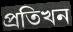
প্ৰতিখন